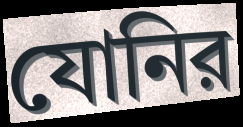
যোনির